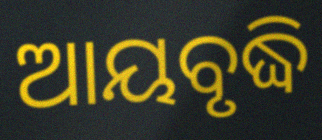
ଆୟବୃଦ୍ଧି